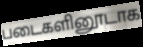
படைகளினூடாக